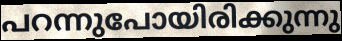
പറന്നുപോയിരിക്കുന്നു